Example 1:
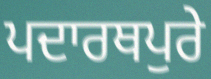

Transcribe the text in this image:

ਪਦਾਰਥਪੁਰੇ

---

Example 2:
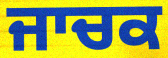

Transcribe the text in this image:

ਜਾਚਕ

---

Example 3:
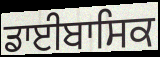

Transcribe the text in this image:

ਡਾਈਬਾਸਿਕ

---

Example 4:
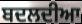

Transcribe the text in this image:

ਬਦਲਦੀਆ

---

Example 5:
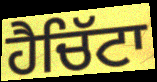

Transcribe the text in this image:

ਹੈਚਿੱਟਾ